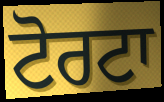
ਟੋਰਟਾ